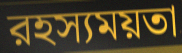
রহস্যময়তা